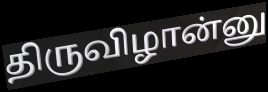
திருவிழான்னு